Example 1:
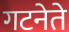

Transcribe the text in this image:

गटनेते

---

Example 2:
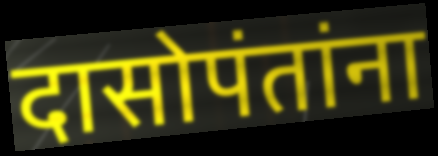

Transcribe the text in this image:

दासोपंतांना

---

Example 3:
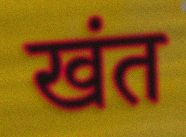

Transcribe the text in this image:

खंत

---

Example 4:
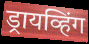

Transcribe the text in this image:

ड्रायव्हिंग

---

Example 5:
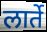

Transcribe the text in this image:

लार्ते